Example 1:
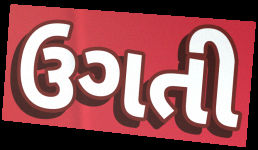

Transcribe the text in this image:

ઉગતી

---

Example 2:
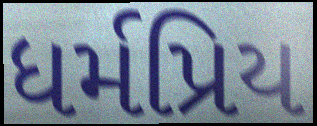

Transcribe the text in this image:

ધર્મપ્રિય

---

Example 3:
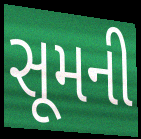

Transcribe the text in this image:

સૂમની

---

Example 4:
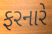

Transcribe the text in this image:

ફરનારે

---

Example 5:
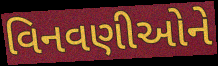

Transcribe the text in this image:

વિનવણીઓને